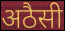
अठैसी